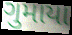
ગુમાયા